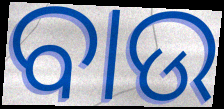
ବାଉ